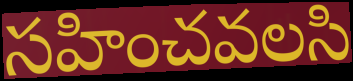
సహించవలసి